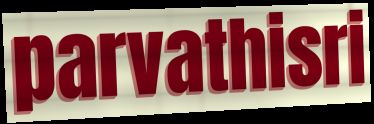
parvathisri